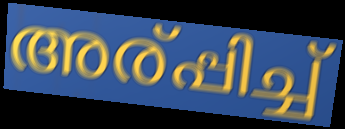
അര്പ്പിച്ച്